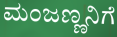
ಮಂಜಣ್ಣನಿಗೆ